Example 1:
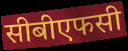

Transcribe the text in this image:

सीबीएफसी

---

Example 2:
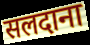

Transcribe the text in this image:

सलदाना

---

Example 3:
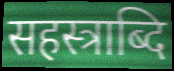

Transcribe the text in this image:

सहस्त्राब्दि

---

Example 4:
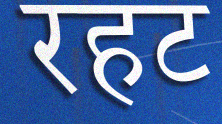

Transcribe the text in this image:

रहट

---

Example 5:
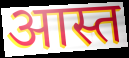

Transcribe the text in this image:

आस्त